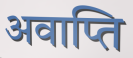
अवाप्ति